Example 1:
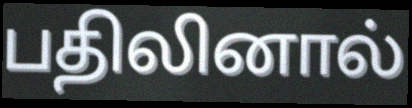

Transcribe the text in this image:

பதிலினால்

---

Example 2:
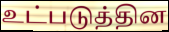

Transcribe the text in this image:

உட்படுத்தின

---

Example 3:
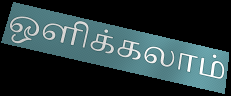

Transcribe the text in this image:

ஒளிக்கலாம்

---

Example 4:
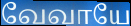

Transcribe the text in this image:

வேவாயே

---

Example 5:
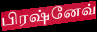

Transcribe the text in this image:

பிரஷ்னேவ்